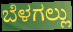
ಬೆಳಗಲ್ಲು